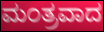
ಮಂತ್ರವಾದ